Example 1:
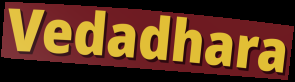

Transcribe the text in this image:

Vedadhara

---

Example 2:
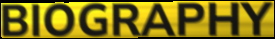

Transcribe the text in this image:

BIOGRAPHY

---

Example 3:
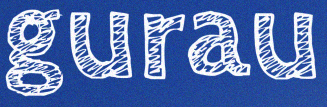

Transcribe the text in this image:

gurau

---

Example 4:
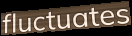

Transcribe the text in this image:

fluctuates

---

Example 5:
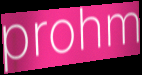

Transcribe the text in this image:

prohm